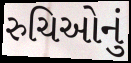
રુચિઓનું